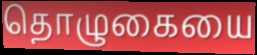
தொழுகையை